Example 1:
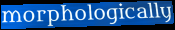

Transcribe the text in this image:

morphologically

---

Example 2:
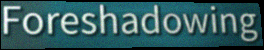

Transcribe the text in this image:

Foreshadowing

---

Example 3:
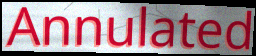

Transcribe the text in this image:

Annulated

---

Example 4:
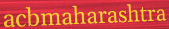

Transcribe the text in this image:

acbmaharashtra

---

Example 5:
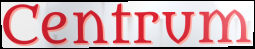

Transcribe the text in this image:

Centrum